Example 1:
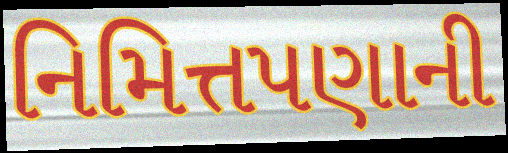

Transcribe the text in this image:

નિમિત્તપણાની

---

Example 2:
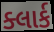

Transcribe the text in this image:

ક્લાર્ક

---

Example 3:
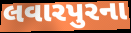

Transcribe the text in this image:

લવારપુરના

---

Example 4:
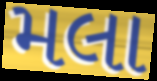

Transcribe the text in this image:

મલા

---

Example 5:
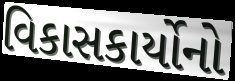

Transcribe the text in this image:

વિકાસકાર્યોનો